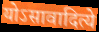
योऽसावादित्ये